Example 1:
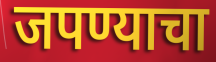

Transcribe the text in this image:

जपण्याचा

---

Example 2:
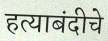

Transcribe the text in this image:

हत्याबंदीचे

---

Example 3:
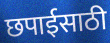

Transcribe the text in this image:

छपाईसाठी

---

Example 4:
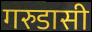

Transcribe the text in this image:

गरुडासी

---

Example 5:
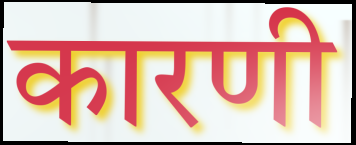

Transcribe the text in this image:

कारणी